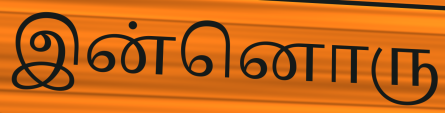
இன்னொரு